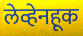
लेव्हेनहूक